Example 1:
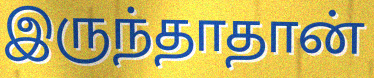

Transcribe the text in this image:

இருந்தாதான்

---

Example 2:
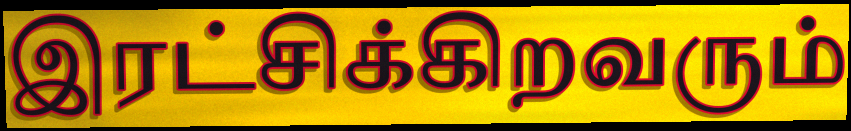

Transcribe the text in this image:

இரட்சிக்கிறவரும்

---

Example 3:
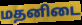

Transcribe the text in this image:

மதனிடை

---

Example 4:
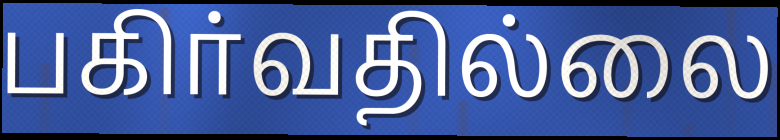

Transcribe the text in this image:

பகிர்வதில்லை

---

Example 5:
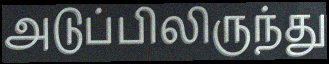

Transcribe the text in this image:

அடுப்பிலிருந்து